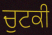
ਚੁਟਕੀ